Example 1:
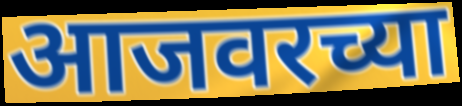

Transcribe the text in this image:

आजवरच्या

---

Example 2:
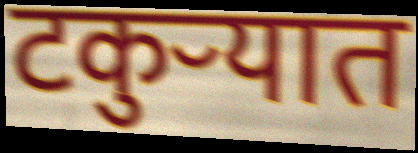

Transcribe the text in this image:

टकुऱ्यात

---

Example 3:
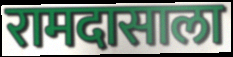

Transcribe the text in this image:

रामदासाला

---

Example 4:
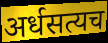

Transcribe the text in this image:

अर्धसत्यच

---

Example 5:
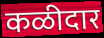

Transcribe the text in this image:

कळीदार